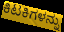
ಕಿಟಕಿಗಳನ್ನು